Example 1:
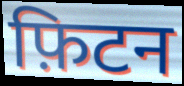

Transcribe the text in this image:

फ़िटन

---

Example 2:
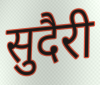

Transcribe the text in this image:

सुदैरी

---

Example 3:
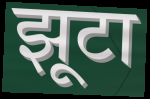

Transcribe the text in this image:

झूटा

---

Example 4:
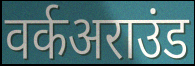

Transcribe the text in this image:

वर्कअराउंड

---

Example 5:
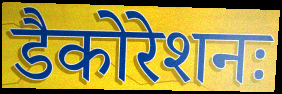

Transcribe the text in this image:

डैकोरेशनः